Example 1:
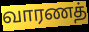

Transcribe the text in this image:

வாரணத்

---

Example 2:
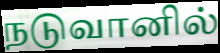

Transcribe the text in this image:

நடுவானில்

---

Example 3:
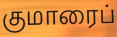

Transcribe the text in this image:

குமாரைப்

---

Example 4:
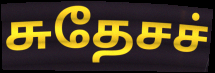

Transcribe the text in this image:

சுதேசச்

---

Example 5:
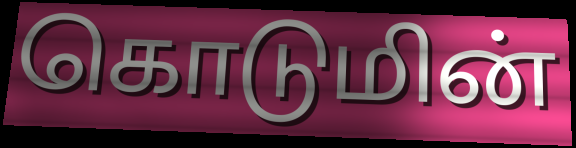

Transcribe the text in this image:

கொடுமின்